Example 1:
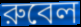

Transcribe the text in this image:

রুবেল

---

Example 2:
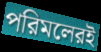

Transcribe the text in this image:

পরিমলেরই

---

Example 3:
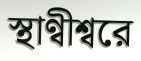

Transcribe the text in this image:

স্থাণ্বীশ্বরে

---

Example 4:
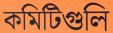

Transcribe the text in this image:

কমিটিগুলি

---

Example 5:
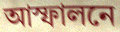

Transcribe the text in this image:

আস্ফালনে